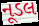
નૂડલ